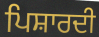
ਪਿਸ਼ਾਰਦੀ